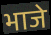
भाजे